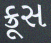
ક્રૂસ